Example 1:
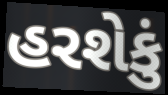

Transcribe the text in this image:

હરશેકું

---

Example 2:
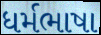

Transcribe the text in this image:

ધર્મભાષા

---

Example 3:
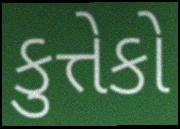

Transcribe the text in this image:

કુત્તેકો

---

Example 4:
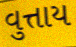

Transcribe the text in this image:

વુત્તાય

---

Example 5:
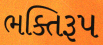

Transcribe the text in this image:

ભક્તિરૂપ